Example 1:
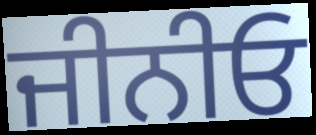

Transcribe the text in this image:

ਜੀਨੀਓ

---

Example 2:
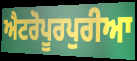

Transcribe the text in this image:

ਐਟਰੋਪੂਰਪੁਰੀਆ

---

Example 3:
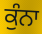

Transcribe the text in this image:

ਕੁੰਨਾ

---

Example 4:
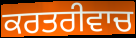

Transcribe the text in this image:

ਕਰਤਰੀਵਾਚ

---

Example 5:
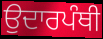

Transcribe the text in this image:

ਉਦਾਰਪੰਥੀ